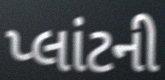
પ્લાંટની